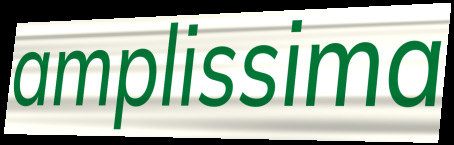
amplissima